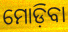
ମୋଡ଼ିବା